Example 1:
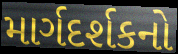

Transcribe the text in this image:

માર્ગદર્શકનો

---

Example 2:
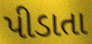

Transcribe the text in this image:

પીડાતા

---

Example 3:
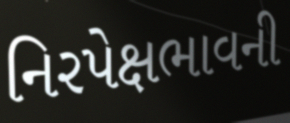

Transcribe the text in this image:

નિરપેક્ષભાવની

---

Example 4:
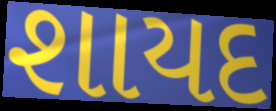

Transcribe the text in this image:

શાયદ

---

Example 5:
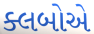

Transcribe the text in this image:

ક્લબોએ